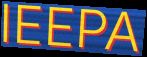
IEEPA